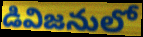
డివిజనులో